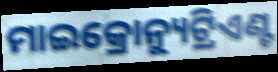
ମାଇକ୍ରୋନ୍ୟୁଟ୍ରିଏଣ୍ଟ